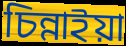
চিন্নাইয়া